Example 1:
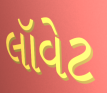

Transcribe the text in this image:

લૉવેટ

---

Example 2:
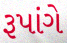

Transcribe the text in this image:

રૂપાંગે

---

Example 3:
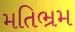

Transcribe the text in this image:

મતિભ્રમ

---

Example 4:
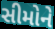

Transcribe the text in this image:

સીમોને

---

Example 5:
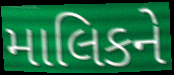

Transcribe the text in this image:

માલિકને